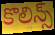
కొలిన్స్